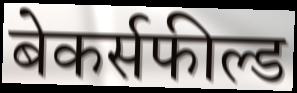
बेकर्सफील्ड